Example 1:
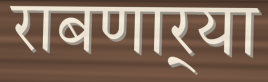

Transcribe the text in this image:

राबणार्या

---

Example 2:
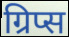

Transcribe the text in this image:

ग्रिप्स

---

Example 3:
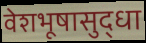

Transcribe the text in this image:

वेशभूषासुद्धा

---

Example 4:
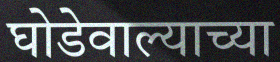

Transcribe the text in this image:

घोडेवाल्याच्या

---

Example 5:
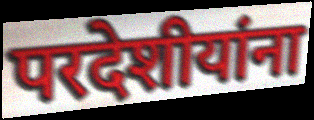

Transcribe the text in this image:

परदेशीयांना